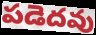
పడెదవు